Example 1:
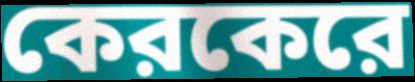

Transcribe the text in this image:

কেরকেরে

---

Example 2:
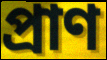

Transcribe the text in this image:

প্রাণ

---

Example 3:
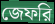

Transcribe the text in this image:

জেফরি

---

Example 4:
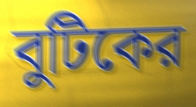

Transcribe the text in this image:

বুটিকের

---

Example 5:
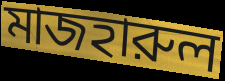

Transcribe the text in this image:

মাজহারুল